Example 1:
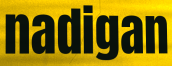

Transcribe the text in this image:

nadigan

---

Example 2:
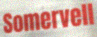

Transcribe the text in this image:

Somervell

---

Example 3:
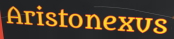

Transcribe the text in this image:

Aristonexus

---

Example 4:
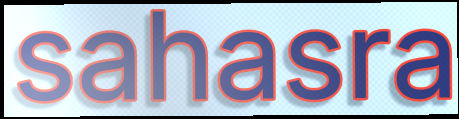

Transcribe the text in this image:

sahasra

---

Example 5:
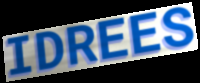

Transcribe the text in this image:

IDREES